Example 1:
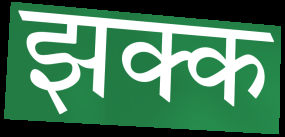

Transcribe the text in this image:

झक्क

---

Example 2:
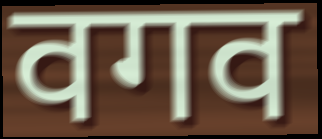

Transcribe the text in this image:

वगव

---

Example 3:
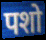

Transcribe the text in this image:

पशो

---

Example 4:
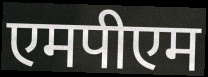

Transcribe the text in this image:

एमपीएम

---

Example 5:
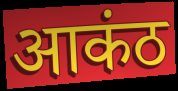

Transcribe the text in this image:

आकंठ